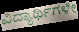
ವಿದ್ಯಾರ್ಥಿಗಳೇ